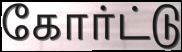
கோர்ட்டு